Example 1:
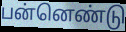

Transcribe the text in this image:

பன்னெண்டு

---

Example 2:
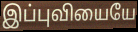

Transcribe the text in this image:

இப்புவியையே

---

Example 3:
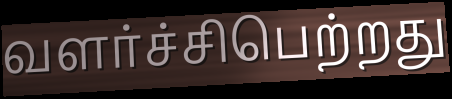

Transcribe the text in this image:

வளர்ச்சிபெற்றது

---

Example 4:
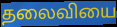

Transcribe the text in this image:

தலைவியை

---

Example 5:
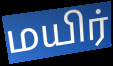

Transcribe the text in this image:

மயிர்